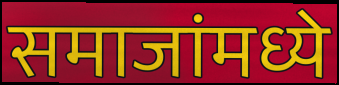
समाजांमध्ये